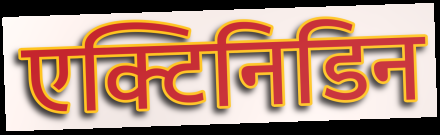
एक्टिनिडिन